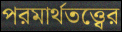
পরমার্থতত্ত্বের